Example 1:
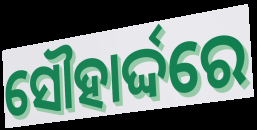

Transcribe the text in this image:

ସୌହାର୍ଦ୍ଦରେ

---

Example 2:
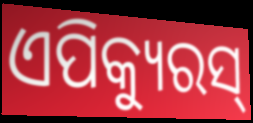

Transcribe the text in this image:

ଏପିକ୍ୟୁରସ୍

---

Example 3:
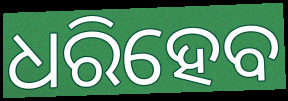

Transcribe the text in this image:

ଧରିହେବ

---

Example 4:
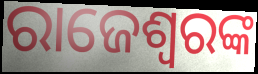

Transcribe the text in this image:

ରାଜେଶ୍ୱରଙ୍କ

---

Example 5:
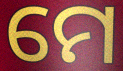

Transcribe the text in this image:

ମେ